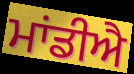
ਮਾਂਡੀਐ